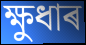
ক্ষুধাৰ